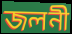
জলনী